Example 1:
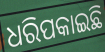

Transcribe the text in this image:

ଧରିପକାଇଛି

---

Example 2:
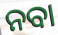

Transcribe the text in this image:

ନବା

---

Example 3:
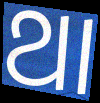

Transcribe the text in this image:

ଥା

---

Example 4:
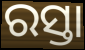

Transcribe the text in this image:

ରସ୍ତା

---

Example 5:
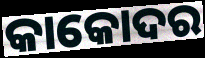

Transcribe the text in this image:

କାକୋଦର